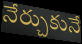
నేర్చుకునే